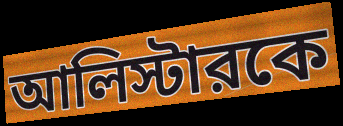
আলিস্টারকে